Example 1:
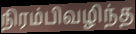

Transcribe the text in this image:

நிரம்பிவழிந்த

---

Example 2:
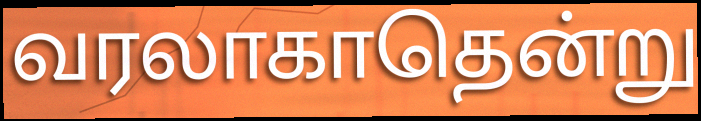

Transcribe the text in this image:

வரலாகாதென்று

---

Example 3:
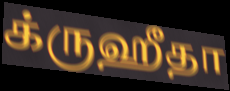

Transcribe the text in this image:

க்ருஹீதா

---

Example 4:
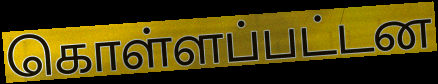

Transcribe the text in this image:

கொள்ளப்பட்டன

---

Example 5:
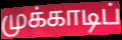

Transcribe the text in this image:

முக்காடிப்